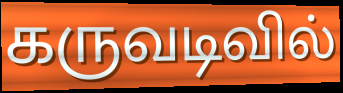
கருவடிவில்